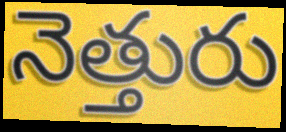
నెత్తురు